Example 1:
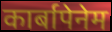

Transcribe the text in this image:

कार्बापेनेम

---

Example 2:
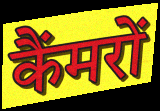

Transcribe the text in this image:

कैंमरों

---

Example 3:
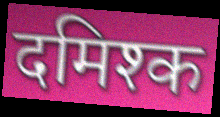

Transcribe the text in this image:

दमिश्क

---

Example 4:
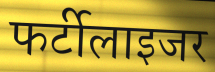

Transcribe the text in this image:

फर्टीलाइजर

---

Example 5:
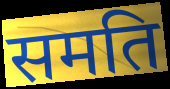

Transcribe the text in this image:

समति